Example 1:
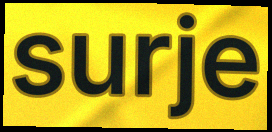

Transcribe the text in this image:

surje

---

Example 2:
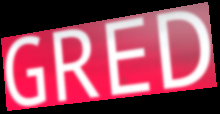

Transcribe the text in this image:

GRED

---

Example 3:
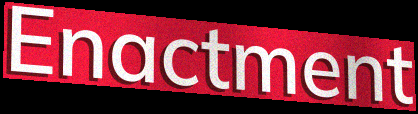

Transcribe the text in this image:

Enactment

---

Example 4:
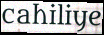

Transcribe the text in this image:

cahiliye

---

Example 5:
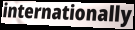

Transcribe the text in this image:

internationally